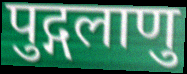
पुद्गलाणु